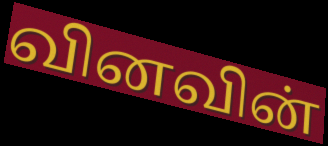
வினவின்